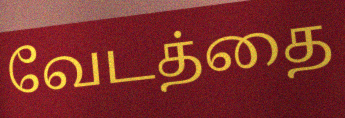
வேடத்தை